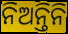
ନିଅନ୍ତିନି